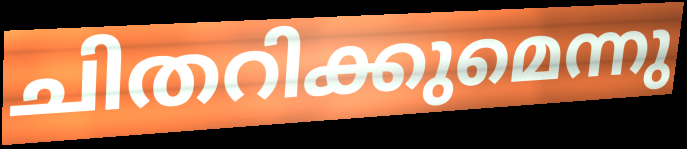
ചിതറിക്കുമെന്നു